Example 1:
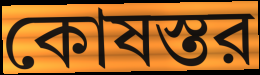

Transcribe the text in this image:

কোষস্তর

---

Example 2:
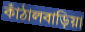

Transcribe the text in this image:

কাঁঠালবাড়িয়া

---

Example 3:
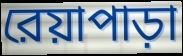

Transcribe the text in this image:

রেয়াপাড়া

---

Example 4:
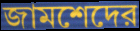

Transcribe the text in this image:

জামশেদের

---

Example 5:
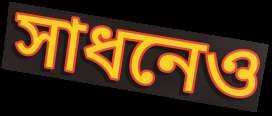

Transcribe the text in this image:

সাধনেও